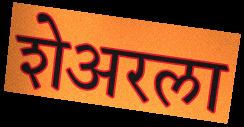
शेअरला